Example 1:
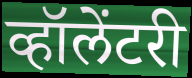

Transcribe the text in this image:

व्हॉलेंटरी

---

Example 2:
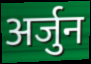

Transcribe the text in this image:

अर्जुन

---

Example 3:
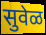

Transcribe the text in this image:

सुवेळ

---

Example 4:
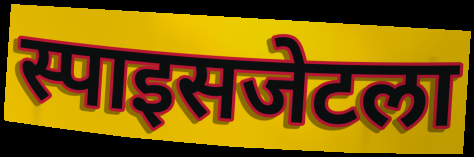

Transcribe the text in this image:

स्पाइसजेटला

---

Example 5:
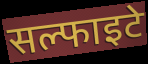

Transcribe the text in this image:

सल्फाइटे